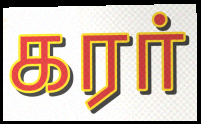
கரர்